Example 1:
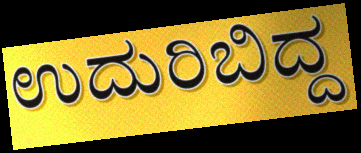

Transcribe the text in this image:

ಉದುರಿಬಿದ್ದ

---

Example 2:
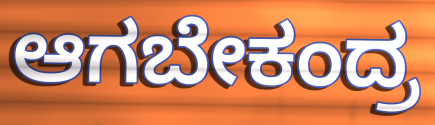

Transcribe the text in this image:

ಆಗಬೇಕಂದ್ರ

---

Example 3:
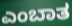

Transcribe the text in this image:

ಎಂಬಾತ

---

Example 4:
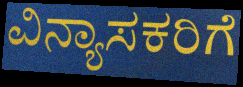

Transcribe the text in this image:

ವಿನ್ಯಾಸಕರಿಗೆ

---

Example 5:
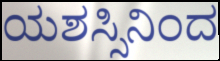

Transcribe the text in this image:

ಯಶಸ್ಸಿನಿಂದ